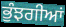
ਭੁੰਝਗੀਆਂ